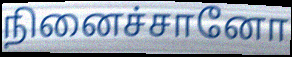
நினைச்சானோ